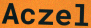
Aczel